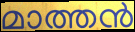
മാത്തൻ